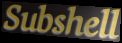
Subshell